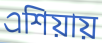
এশিয়ায়